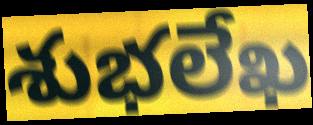
శుభలేఖ